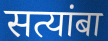
सत्यांबा